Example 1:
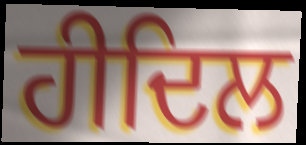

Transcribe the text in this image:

ਹੀਦਿਲ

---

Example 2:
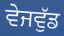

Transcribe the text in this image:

ਵੇਜਵੁੱਡ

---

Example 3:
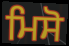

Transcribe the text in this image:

ਮਿਸੋ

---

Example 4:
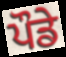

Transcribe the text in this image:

ਪੌਡੇ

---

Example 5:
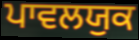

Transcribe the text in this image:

ਪਾਵਲਯੁਕ